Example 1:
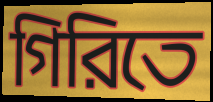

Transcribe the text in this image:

গিরিতে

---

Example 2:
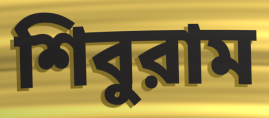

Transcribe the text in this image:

শিবুরাম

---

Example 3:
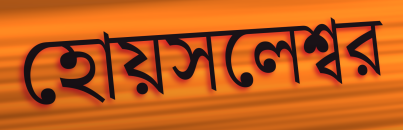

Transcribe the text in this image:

হোয়সলেশ্বর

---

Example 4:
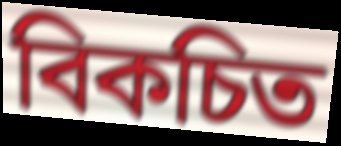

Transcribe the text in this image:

বিকচিত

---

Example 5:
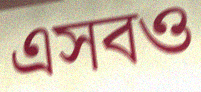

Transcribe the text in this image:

এসবও